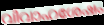
വിവാഹശേഷം